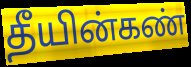
தீயின்கண்